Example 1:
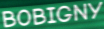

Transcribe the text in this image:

BOBIGNY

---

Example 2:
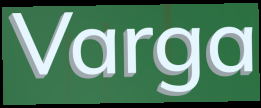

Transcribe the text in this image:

Varga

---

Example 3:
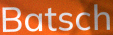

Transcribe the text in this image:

Batsch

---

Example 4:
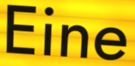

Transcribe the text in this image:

Eine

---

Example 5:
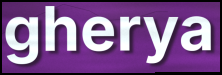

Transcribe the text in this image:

gherya